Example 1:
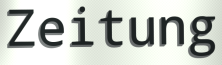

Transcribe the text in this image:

Zeitung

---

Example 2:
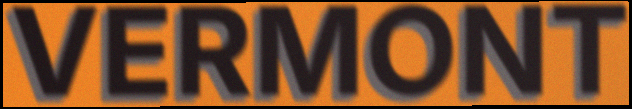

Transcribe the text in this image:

VERMONT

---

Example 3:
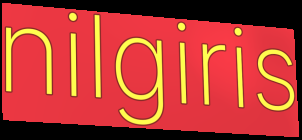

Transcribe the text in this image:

nilgiris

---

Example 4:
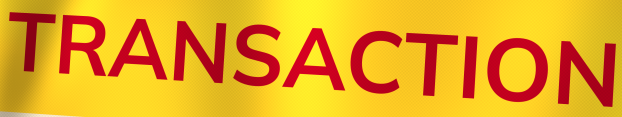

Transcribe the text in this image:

TRANSACTION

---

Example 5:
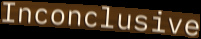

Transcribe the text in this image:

Inconclusive